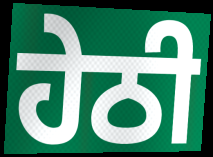
ਹੇਠੀ